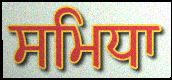
ਸਮਿਧਾ